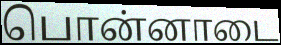
பொன்னாடை